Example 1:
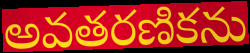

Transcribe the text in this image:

అవతరణికను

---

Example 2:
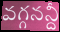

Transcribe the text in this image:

వగ్గనన్దీ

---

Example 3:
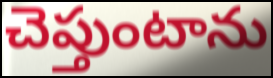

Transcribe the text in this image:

చెప్తుంటాను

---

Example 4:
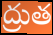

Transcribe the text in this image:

ద్రుత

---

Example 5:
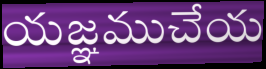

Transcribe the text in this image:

యజ్ఞముచేయ